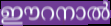
ഈറനാൽ